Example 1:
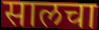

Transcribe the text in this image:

सालचा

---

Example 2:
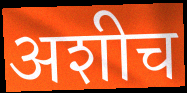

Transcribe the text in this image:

अशीच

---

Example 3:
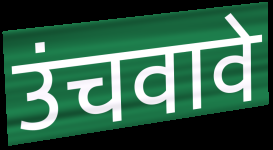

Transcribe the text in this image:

उंचवावे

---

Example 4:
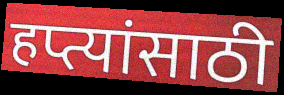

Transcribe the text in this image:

हप्त्यांसाठी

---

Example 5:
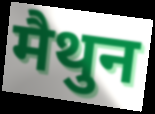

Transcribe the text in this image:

मैथुन